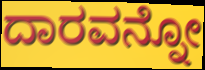
ದಾರವನ್ನೋ